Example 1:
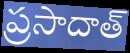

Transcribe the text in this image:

ప్రసాదాత్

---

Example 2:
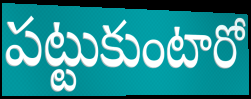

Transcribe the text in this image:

పట్టుకుంటారో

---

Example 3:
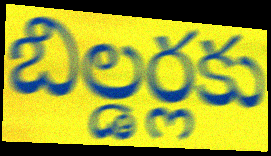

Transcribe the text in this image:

బిల్డర్లకు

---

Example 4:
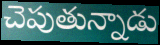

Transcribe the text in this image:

చెపుతున్నాడు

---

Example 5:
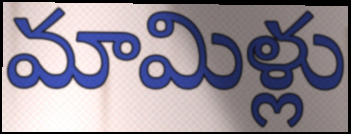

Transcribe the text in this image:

మామిళ్లు